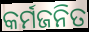
କର୍ମଜନିତ